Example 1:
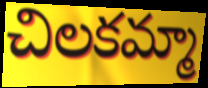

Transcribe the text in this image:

చిలకమ్మా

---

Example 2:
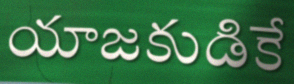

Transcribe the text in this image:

యాజకుడికే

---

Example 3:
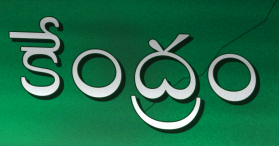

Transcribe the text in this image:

కేంద్రం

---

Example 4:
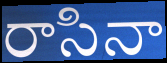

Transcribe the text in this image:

రాసినా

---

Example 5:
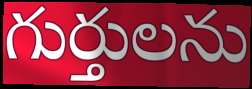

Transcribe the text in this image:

గుర్తులను